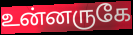
உன்னருகே